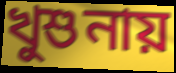
খুশুনায়